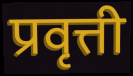
प्रवृत्ती